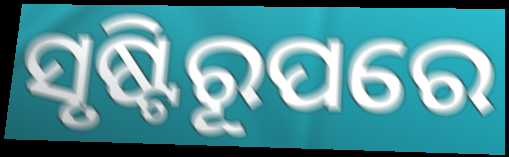
ସୃଷ୍ଟିରୂପରେ